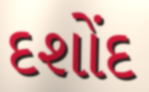
દશોંદ